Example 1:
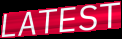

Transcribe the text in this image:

LATEST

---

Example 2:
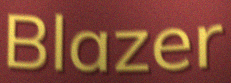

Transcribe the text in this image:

Blazer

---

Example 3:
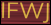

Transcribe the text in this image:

IFWJ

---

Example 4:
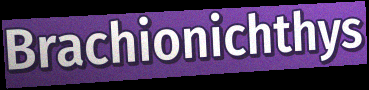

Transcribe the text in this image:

Brachionichthys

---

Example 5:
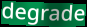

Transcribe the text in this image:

degrade